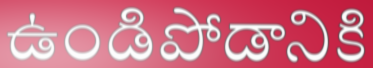
ఉండిపోడానికి